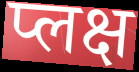
प्लक्ष